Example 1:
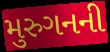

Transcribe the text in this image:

મુરુગનની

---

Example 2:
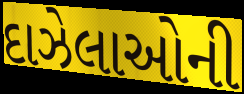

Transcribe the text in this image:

દાઝેલાઓની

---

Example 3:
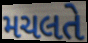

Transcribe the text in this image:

મચલતે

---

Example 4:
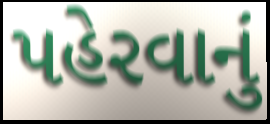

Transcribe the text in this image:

પહેરવાનું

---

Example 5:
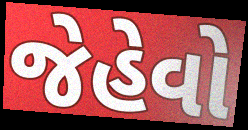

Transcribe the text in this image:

જેહેવો